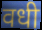
वधी